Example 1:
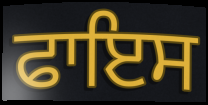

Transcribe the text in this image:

ਫਾਇਸ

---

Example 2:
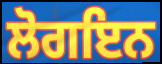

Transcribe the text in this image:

ਲੋਗਇਨ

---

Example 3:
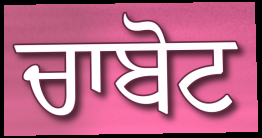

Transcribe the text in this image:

ਚਾਬੋਟ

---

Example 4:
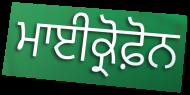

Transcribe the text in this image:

ਮਾਈਕ੍ਰੋਫ਼ੋਨ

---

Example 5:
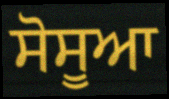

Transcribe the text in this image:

ਸੋਸੂਆ